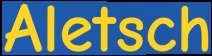
Aletsch